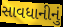
સાવધાનીનું